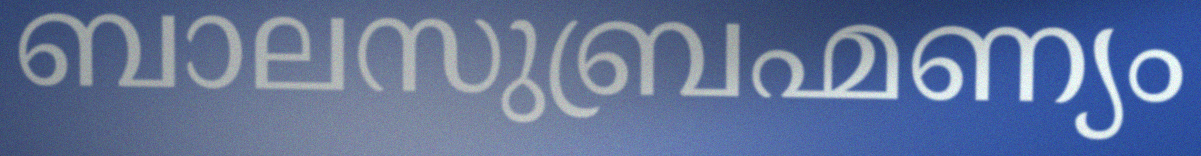
ബാലസുബ്രഹ്മണ്യം